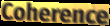
Coherence